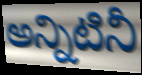
అన్నిటినీ